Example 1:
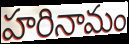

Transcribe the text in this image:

హరినామం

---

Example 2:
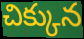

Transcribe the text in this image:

చిక్కున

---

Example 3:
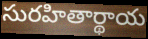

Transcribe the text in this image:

సురహితార్థాయ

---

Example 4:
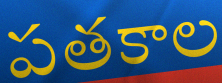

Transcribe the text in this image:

పతకాల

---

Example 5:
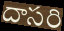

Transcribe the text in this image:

దాసరి